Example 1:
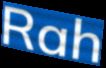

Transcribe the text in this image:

Rah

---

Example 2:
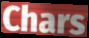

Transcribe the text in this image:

Chars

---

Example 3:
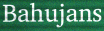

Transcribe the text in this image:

Bahujans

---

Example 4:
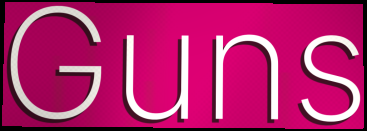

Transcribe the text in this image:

Guns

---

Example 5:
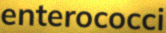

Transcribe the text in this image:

enterococci